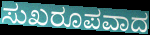
ಸುಖರೂಪವಾದ